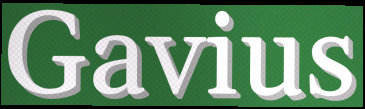
Gavius